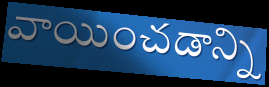
వాయించడాన్ని